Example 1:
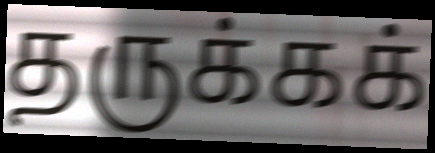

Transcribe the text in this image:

தருக்கக்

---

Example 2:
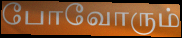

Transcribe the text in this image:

போவோரும்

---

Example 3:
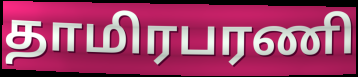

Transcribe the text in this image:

தாமிரபரணி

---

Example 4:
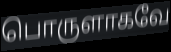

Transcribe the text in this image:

பொருளாகவே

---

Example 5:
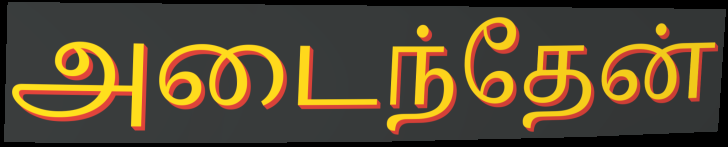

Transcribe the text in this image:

அடைந்தேன்